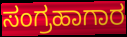
ಸಂಗ್ರಹಾಗಾರ